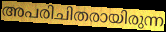
അപരിചിതരായിരുന്ന